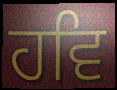
ਹਵਿ